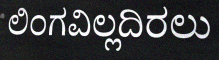
ಲಿಂಗವಿಲ್ಲದಿರಲು